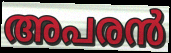
അപരൻ